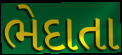
ભેદાતા